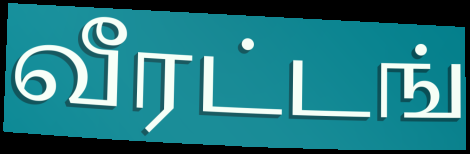
வீரட்டங்